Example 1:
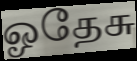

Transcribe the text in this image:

ஓதேசு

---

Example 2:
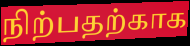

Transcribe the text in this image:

நிற்பதற்காக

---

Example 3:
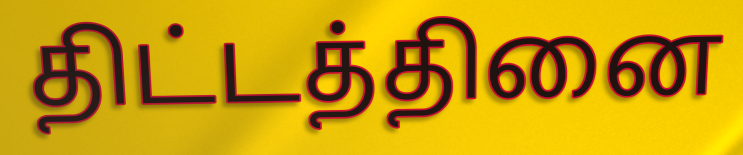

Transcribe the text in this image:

திட்டத்தினை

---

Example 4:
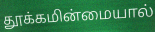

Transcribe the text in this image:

தூக்கமின்மையால்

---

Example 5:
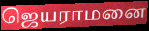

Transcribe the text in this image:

ஜெயராமனை